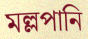
মল্লপানি